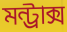
মন্ট্রাক্স